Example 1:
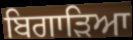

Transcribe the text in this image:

ਬਿਗਾੜਿਆ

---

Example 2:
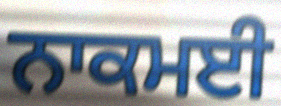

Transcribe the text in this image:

ਨਾਕਮਈ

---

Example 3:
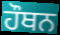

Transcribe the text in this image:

ਹੌਥਨ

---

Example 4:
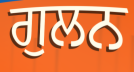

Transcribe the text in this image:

ਗੁਲਨ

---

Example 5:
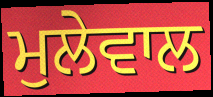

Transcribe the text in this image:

ਮੁਲੇਵਾਲ